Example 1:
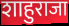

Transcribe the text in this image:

शाहुराजा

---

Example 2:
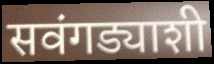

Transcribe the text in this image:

सवंगड्याशी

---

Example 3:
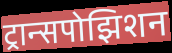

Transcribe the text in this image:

ट्रान्सपोझिशन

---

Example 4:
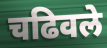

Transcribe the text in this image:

चढिवले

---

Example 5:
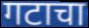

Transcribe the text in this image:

गटाचा